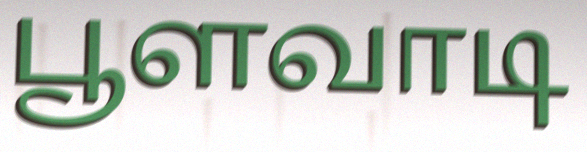
பூளவாடி